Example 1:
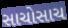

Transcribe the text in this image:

સાચોસાચ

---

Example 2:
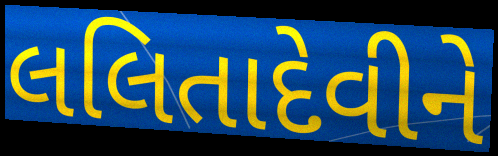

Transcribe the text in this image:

લલિતાદેવીને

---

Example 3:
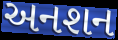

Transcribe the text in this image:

અનશન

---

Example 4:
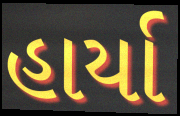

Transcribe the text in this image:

હાર્યા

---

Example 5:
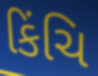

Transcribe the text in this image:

કિંચિ